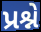
પ્રશ્ને